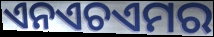
ଏନଏଚଏମର